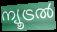
ന്യൂട്രൽ